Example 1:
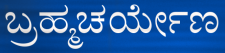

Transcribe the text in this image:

ಬ್ರಹ್ಮಚರ್ಯೇಣ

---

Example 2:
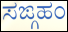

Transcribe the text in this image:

ಸಙ್ಗಹಂ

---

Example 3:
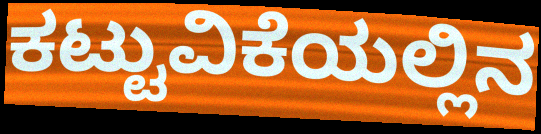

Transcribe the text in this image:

ಕಟ್ಟುವಿಕೆಯಲ್ಲಿನ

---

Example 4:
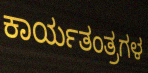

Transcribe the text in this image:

ಕಾರ್ಯತಂತ್ರಗಳ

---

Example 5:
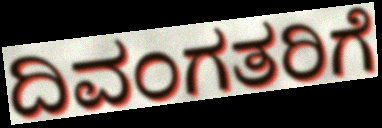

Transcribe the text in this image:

ದಿವಂಗತರಿಗೆ